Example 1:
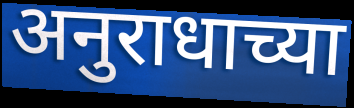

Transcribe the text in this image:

अनुराधाच्या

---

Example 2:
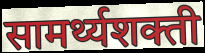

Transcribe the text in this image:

सामर्थ्यशक्ती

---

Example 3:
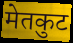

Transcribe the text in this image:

मेतकुट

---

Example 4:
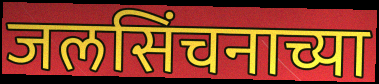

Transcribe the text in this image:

जलसिंचनाच्या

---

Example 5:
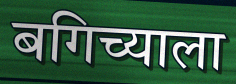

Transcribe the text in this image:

बगिच्याला